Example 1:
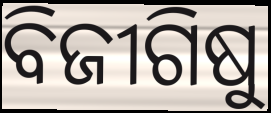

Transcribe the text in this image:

ବିଜୀଗିଷୁ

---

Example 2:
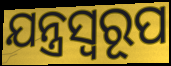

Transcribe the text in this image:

ଯନ୍ତ୍ରସ୍ୱରୂପ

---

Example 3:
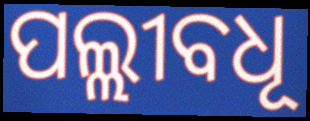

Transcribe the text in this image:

ପଲ୍ଲୀବଧୂ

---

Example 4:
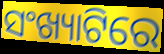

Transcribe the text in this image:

ସଂଖ୍ୟାଟିରେ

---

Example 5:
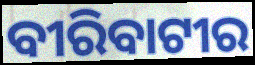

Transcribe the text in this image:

ବୀରିବାଟୀର